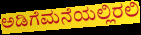
ಅಡಿಗೆಮನೆಯಲ್ಲಿರಲಿ